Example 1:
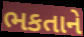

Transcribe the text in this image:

ભકતાને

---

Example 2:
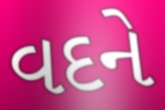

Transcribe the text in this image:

વદને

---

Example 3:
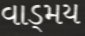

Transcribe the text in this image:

વાડ્મય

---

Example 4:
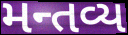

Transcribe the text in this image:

મન્તવ્ય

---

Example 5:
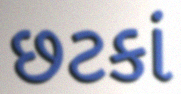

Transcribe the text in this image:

છટકાં